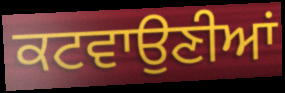
ਕਟਵਾਉਣੀਆਂ